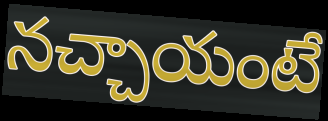
నచ్చాయంటే